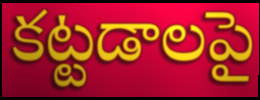
కట్టడాలపై